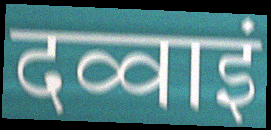
दव्वाइं